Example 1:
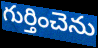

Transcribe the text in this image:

గుర్తించెను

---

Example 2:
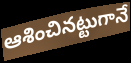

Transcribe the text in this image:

ఆశించినట్టుగానే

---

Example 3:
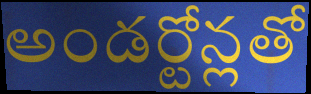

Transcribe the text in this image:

అండర్టోన్లతో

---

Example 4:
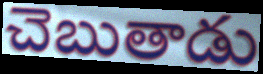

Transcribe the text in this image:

చెబుతాడు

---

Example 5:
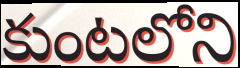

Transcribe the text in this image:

కుంటలోని